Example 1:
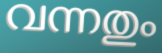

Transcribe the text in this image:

വന്നതും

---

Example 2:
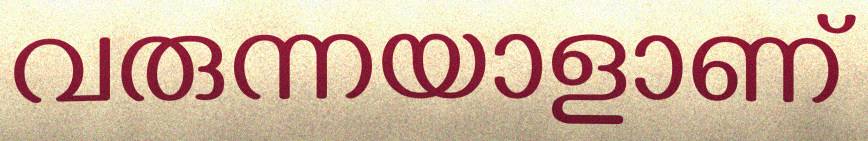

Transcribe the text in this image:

വരുന്നയാളാണ്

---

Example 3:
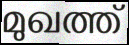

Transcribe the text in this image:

മുഖത്ത്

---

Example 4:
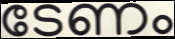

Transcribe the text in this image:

ടേണം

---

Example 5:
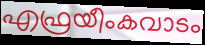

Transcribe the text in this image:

എഫ്രയീംകവാടം